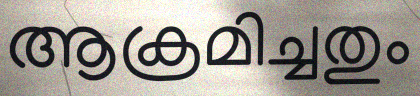
ആക്രമിച്ചതും